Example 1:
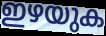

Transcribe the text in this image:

ഇഴയുക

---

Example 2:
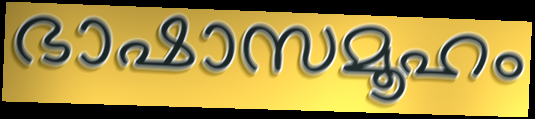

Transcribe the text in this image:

ഭാഷാസമൂഹം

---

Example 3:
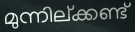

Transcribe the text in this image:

മുന്നില്ക്കണ്ട്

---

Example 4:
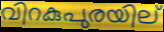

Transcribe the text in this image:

വിറകുപുരയില്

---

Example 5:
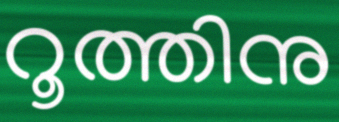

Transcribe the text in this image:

റൂത്തിനു